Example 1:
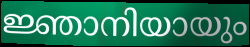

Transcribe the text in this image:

ജ്ഞാനിയായും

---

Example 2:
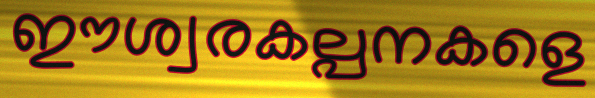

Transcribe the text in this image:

ഈശ്വരകല്പനകളെ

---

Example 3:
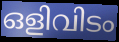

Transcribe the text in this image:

ഒളിവിടം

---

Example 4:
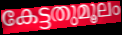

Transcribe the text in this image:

കേട്ടതുമൂലം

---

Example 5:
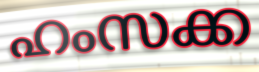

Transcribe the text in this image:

ഹംസക്ക